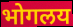
भोगलय